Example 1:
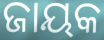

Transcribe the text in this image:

ଜାୟକ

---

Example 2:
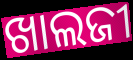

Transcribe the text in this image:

ଖାଲଜୀ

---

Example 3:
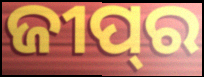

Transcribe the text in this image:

ଜୀପ୍‌ର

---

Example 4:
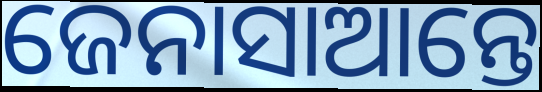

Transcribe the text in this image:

ଜେନାସାଆନ୍ତେ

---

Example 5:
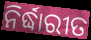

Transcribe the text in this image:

ନିର୍ଦ୍ଧାରୀତ